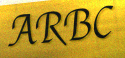
ARBC